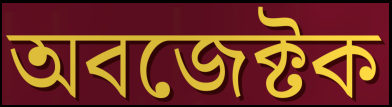
অবজেক্টক